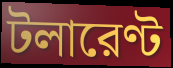
টলারেণ্ট